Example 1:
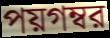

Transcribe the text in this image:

পয়গম্বর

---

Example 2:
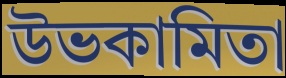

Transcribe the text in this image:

উভকামিতা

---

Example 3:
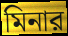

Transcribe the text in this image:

মিনার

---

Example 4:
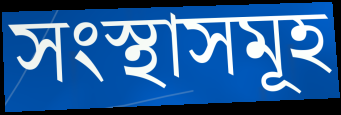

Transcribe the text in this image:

সংস্থাসমূহ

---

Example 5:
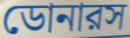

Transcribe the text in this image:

ডোনারস